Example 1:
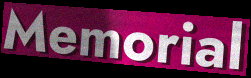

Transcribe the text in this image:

Memorial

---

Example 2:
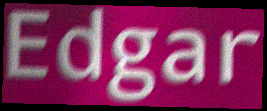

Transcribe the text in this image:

Edgar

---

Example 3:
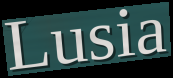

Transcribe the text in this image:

Lusia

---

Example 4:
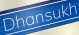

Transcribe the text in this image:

Dhansukh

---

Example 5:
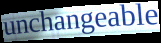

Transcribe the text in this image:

unchangeable